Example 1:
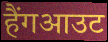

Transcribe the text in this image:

हैंगआउट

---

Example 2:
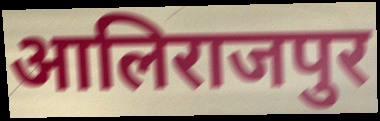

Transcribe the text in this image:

आलिराजपुर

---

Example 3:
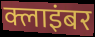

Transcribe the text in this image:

क्लाइंबर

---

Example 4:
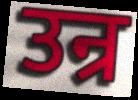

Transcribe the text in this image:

उन्र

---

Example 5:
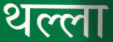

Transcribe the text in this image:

थल्ला